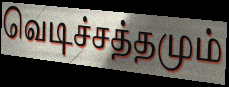
வெடிச்சத்தமும்